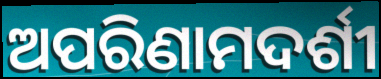
ଅପରିଣାମଦର୍ଶୀ